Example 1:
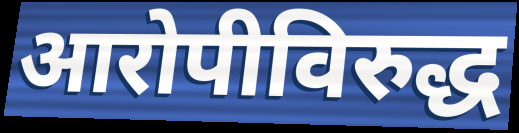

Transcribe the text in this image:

आरोपीविरुद्ध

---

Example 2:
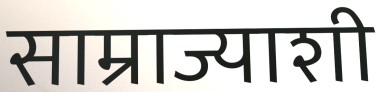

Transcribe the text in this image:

साम्राज्याशी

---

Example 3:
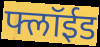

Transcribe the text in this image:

फ्लॉईड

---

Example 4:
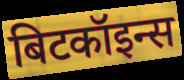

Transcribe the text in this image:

बिटकॉइन्स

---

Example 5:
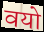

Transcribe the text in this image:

वयो